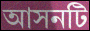
আসনটি